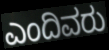
ಎಂದಿವರು